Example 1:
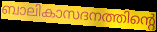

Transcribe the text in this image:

ബാലികാസദനത്തിന്റെ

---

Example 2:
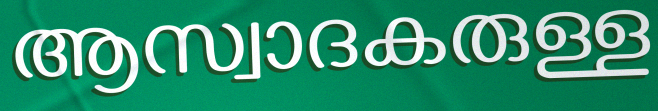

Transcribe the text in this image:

ആസ്വാദകരുള്ള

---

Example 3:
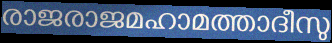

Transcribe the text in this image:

രാജരാജമഹാമത്താദീസു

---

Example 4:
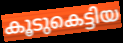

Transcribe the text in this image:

കൂടുകെട്ടിയ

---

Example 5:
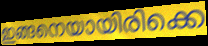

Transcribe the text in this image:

ഇങ്ങനെയായിരിക്കെ